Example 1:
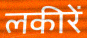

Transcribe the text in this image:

लकीरें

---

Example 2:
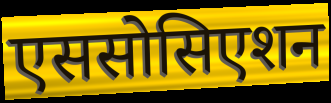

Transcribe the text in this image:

एससोसिएशन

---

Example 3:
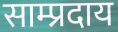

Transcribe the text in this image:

साम्प्रदाय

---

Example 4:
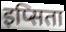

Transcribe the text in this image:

इप्सिता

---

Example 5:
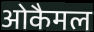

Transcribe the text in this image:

ओकैमल